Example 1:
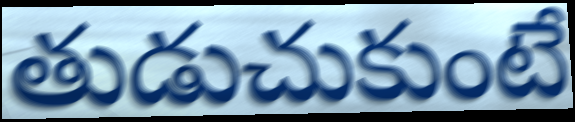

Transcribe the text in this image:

తుడుచుకుంటే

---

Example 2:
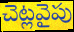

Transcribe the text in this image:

చెట్లవైపు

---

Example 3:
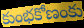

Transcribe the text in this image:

కుంభకోణంకు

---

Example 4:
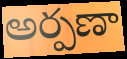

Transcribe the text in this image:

అర్పణా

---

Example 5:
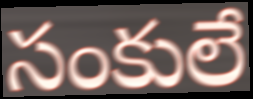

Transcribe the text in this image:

సంకులే